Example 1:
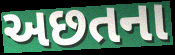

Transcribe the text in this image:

અછતના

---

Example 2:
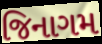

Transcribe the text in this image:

જિનાગમ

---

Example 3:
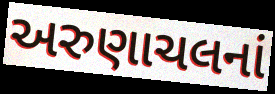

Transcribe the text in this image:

અરુણાચલનાં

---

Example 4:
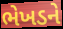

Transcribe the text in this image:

ભેખડને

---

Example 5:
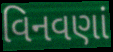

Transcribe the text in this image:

વિનવણાં